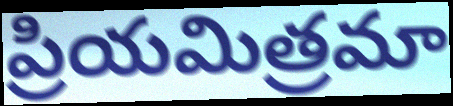
ప్రియమిత్రమా